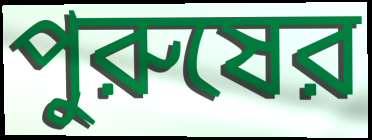
পুরুষের